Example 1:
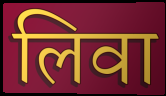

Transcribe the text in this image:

लिवा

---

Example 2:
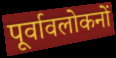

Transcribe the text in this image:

पूर्वावलोकनों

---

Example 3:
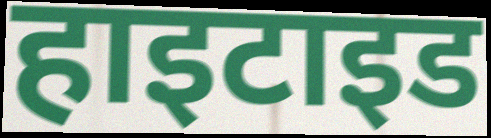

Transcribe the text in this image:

हाइटाइड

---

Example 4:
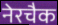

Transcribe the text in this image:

नेरचैक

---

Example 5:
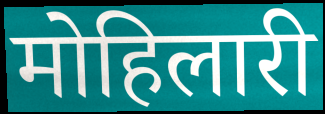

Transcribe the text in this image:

मोहिलारी